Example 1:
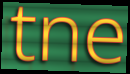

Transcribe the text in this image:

tne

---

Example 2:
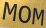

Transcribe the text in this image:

MOM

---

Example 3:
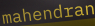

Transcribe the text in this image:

mahendran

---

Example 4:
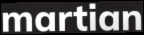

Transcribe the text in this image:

martian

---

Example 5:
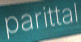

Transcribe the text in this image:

parittal